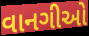
વાનગીઓ